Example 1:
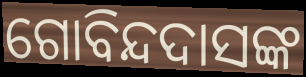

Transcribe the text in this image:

ଗୋବିନ୍ଦଦାସଙ୍କ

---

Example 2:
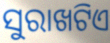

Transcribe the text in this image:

ସୁରାଖଟିଏ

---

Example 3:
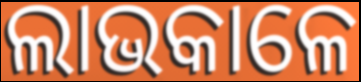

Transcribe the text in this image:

ଲାଭକାଳେ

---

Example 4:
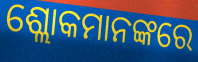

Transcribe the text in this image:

ଶ୍ଲୋକମାନଙ୍କରେ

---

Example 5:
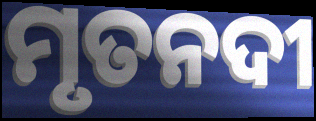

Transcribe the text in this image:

ମୃତନଦୀ